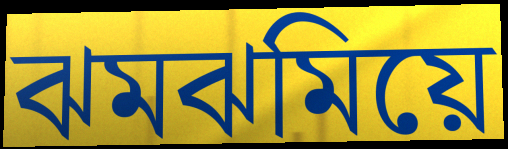
ঝমঝমিয়ে